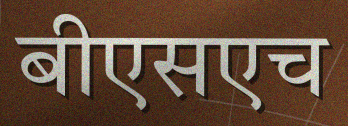
बीएसएच